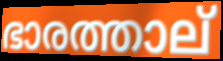
ഭാരത്താല്